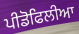
ਪੀਡੋਫਿਲੀਆ